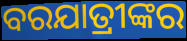
ବରଯାତ୍ରୀଙ୍କର